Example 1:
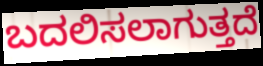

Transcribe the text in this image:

ಬದಲಿಸಲಾಗುತ್ತದೆ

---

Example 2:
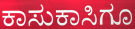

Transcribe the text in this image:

ಕಾಸುಕಾಸಿಗೂ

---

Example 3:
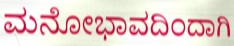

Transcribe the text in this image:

ಮನೋಭಾವದಿಂದಾಗಿ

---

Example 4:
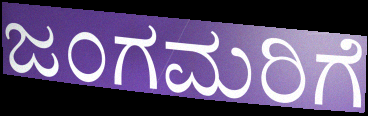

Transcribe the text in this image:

ಜಂಗಮರಿಗೆ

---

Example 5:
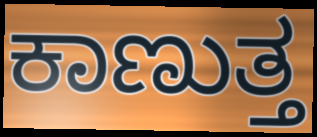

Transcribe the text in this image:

ಕಾಣುತ್ತ